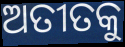
ଅତୀତକୁ